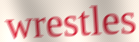
wrestles